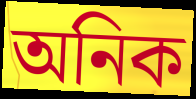
অনিক